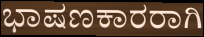
ಭಾಷಣಕಾರರಾಗಿ